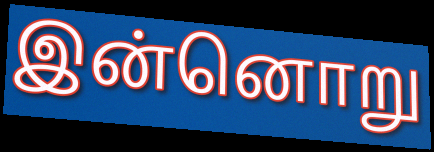
இன்னொறு